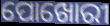
ପୋଖୋରୀ